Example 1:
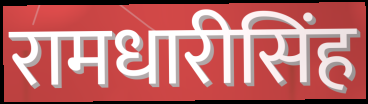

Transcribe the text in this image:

रामधारीसिंह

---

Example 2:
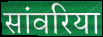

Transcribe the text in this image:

सांवरिया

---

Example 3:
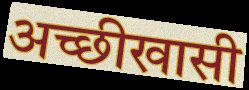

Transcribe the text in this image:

अच्छीखासी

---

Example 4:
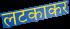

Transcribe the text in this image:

लटकाकर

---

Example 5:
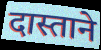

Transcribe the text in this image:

दास्ताने